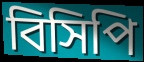
বিসিপি